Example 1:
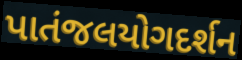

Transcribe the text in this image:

પાતંજલયોગદર્શન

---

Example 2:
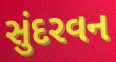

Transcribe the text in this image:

સુંદરવન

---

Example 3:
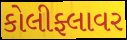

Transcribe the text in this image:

કોલીફ્લાવર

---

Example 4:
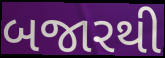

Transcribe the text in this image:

બજારથી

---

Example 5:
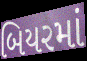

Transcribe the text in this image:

બિયરમાં